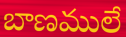
బాణములే